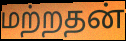
மற்றதன்